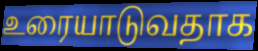
உரையாடுவதாக